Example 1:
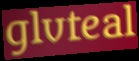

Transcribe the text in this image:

gluteal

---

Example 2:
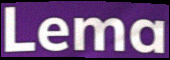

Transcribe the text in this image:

Lema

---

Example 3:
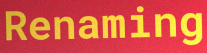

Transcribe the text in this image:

Renaming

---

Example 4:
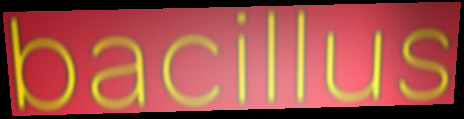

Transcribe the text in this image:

bacillus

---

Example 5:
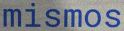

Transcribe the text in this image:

mismos